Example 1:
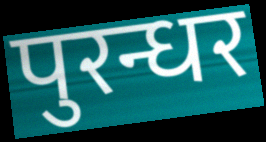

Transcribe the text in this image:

पुरन्धर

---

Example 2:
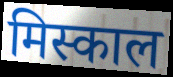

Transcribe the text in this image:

मिस्काल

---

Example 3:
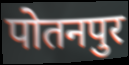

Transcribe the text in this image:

पोतनपुर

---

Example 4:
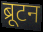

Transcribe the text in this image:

ब्रूटन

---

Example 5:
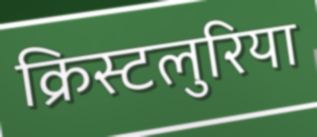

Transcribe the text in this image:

क्रिस्टलुरिया